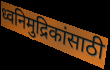
ध्वनिमुद्रिकांसाठी